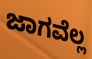
ಜಾಗವೆಲ್ಲ